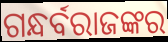
ଗନ୍ଧର୍ବରାଜଙ୍କର